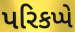
પરિકપ્પે